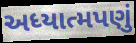
અધ્યાત્મપણું